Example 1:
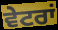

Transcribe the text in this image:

ਵੇਟਰਾਂ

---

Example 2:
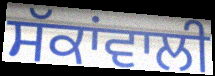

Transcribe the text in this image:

ਸੱਕਾਂਵਾਲੀ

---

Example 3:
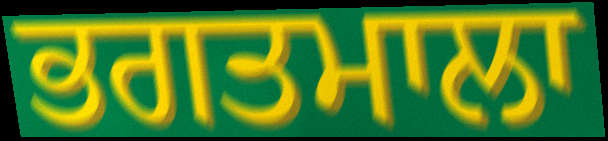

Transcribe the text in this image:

ਭਗਤਮਾਲਾ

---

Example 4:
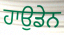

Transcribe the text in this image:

ਹਾਉਡੇਨ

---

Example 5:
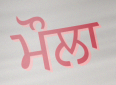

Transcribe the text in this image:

ਮੌਲਾ